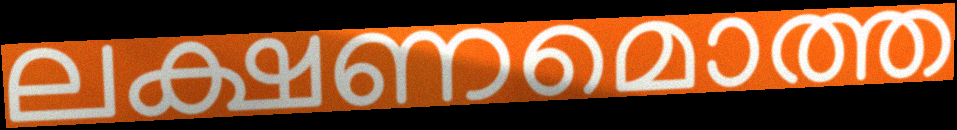
ലക്ഷണമൊത്ത